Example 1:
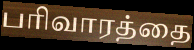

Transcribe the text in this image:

பரிவாரத்தை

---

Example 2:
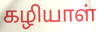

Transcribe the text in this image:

கழியாள்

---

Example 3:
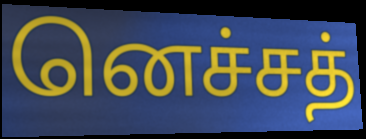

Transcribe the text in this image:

னெச்சத்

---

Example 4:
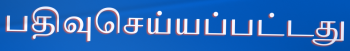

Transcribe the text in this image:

பதிவுசெய்யப்பட்டது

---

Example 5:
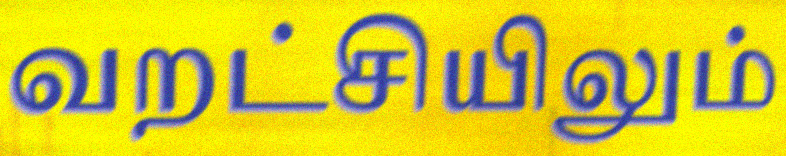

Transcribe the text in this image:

வறட்சியிலும்